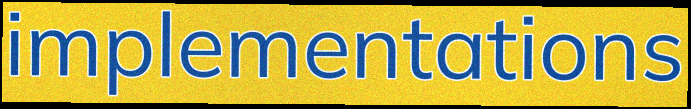
implementations